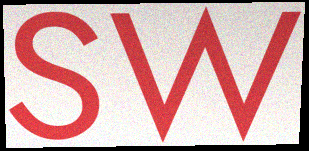
SW